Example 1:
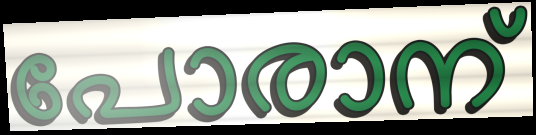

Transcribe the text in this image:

പോരാന്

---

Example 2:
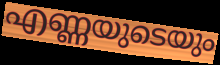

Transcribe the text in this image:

എണ്ണയുടെയും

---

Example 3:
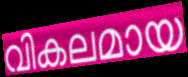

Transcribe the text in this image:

വികലമായ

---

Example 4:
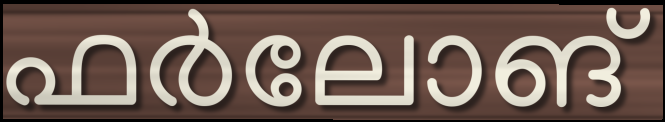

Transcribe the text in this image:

ഫർലോങ്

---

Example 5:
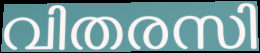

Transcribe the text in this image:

വിതരസി